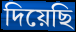
দিয়েছি